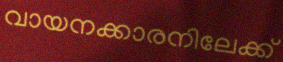
വായനക്കാരനിലേക്ക്